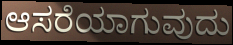
ಆಸರೆಯಾಗುವುದು